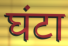
घंटा